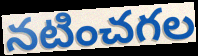
నటించగల